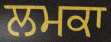
ਲਮਕਾ